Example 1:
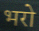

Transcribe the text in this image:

भरो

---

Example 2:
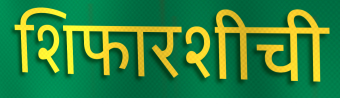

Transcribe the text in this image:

शिफारशीची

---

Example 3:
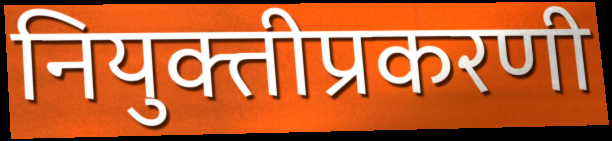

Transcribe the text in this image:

नियुक्तीप्रकरणी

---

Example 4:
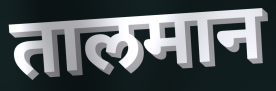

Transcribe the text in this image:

तालमान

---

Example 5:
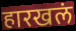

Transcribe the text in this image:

हारखलं